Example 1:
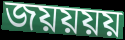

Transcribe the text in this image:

জয়য়য়য়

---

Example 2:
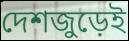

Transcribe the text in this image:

দেশজুড়েই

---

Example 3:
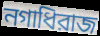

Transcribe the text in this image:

নগাধিরাজ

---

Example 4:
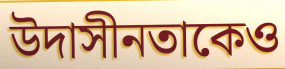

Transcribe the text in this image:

উদাসীনতাকেও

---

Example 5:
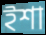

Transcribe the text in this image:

ইশা